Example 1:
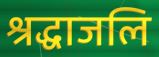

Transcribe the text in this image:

श्रद्धाजलि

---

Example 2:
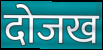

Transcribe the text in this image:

दोजख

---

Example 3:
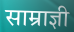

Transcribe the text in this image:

साम्राज्ञी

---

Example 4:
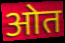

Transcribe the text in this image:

ओत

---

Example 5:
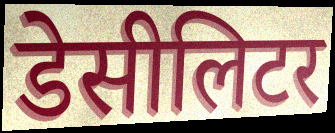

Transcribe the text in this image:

डेसीलिटर